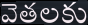
వెతలకు